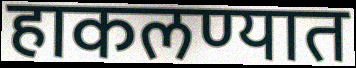
हाकलण्यात